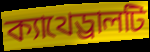
ক্যাথেড্রালটি